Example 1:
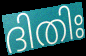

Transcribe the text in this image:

ദിതിഃ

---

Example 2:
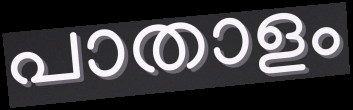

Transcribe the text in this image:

പാതാളം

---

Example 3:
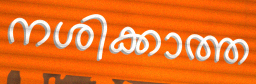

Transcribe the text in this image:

നശിക്കാത്ത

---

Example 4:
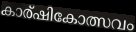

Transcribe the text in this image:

കാര്ഷികോത്സവം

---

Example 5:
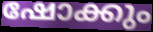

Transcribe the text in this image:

ഷോക്കും